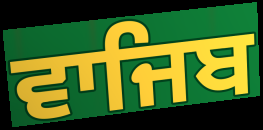
ਵਾਜਿਬ